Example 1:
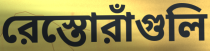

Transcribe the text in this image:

রেস্তোরাঁগুলি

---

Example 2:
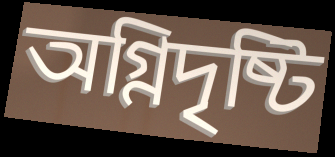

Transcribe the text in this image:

অগ্নিদৃষ্টি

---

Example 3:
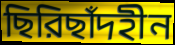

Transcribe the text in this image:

ছিরিছাঁদহীন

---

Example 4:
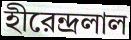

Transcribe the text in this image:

হীরেন্দ্রলাল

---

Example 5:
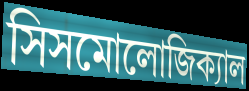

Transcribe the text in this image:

সিসমোলোজিক্যাল